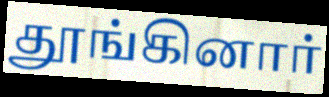
தூங்கினார்